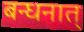
बन्धनात्